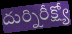
దుర్నిరీక్ష్యో